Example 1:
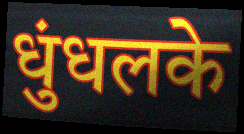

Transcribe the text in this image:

धुंधलके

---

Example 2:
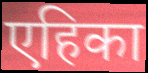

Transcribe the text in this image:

एहिका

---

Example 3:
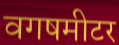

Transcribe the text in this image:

वगषमीटर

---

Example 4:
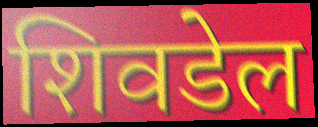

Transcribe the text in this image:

शिवडेल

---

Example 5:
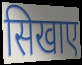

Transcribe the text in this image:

सिखाए